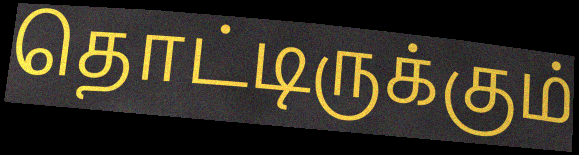
தொட்டிருக்கும்